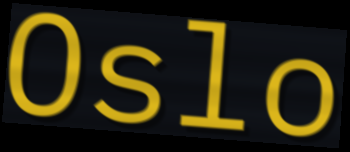
Oslo